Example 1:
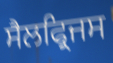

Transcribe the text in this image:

ਸੈਲਫ੍ਰਿਜਸ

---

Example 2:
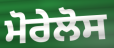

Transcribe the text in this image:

ਮੋਰੇਲੋਸ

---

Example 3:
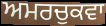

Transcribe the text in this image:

ਅਮਰਚੁਕਵਾ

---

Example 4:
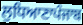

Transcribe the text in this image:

ਲੁਧਿਆਣਾਪੰਜਾਬ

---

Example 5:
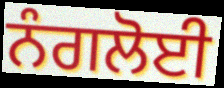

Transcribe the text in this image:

ਨੰਗਲੋਈ